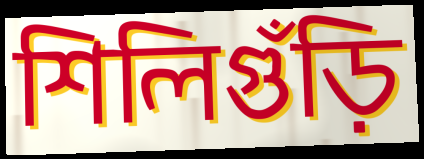
শিলিগুঁড়ি